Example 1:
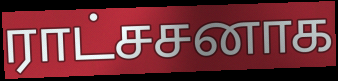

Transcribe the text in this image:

ராட்சசனாக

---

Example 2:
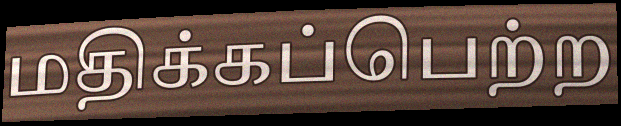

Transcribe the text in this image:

மதிக்கப்பெற்ற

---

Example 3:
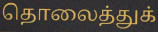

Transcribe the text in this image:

தொலைத்துக்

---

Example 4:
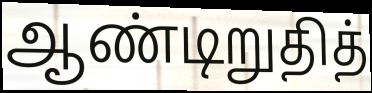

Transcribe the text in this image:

ஆண்டிறுதித்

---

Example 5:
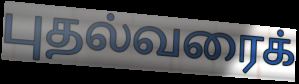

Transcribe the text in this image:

புதல்வரைக்